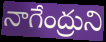
నాగేంద్రుని